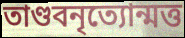
তাণ্ডবনৃত্যোন্মত্ত